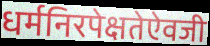
धर्मनिरपेक्षतेऐवजी